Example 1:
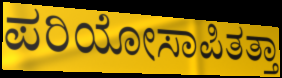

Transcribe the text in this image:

ಪರಿಯೋಸಾಪಿತತ್ತಾ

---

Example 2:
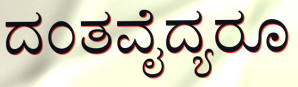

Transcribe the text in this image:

ದಂತವೈದ್ಯರೂ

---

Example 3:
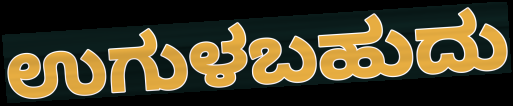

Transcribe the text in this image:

ಉಗುಳಬಹುದು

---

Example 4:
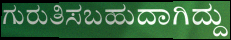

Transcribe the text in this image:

ಗುರುತಿಸಬಹುದಾಗಿದ್ದು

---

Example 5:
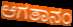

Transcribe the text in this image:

ಆಗತಾನಂ